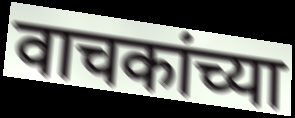
वाचकांच्या